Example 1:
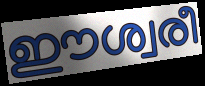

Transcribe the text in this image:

ഈശ്വരീ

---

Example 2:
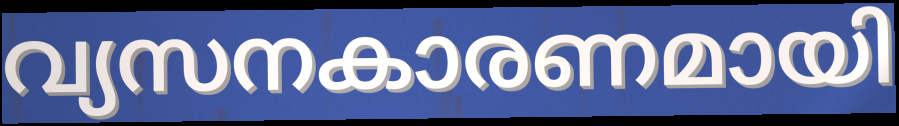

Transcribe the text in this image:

വ്യസനകാരണമായി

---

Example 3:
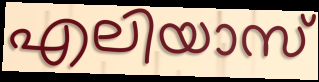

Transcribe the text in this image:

എലിയാസ്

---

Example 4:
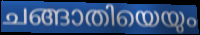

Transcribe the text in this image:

ചങ്ങാതിയെയും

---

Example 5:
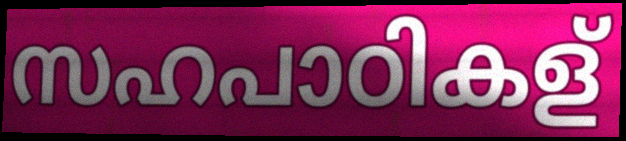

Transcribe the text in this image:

സഹപാഠികള്